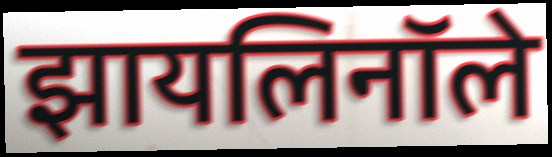
झायलिनॉले